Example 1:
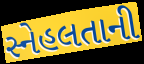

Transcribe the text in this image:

સ્નેહલતાની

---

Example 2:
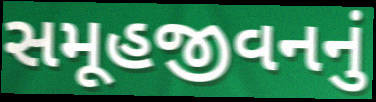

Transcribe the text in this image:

સમૂહજીવનનું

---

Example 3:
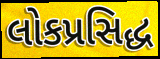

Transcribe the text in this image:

લોકપ્રસિદ્ધ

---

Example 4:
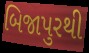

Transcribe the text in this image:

બિજાપુરથી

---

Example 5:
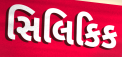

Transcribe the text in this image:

સિલિકિક